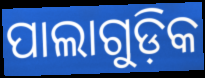
ପାଲାଗୁଡ଼ିକ